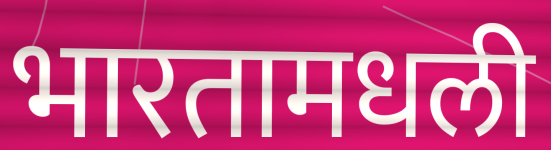
भारतामधली